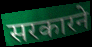
सरकारने